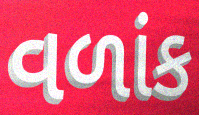
વળાંક